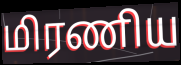
மிரணிய